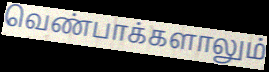
வெண்பாக்களாலும்